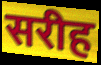
सरीह